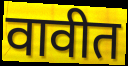
वावीत